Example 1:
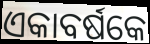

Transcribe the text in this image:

ଏକାବର୍ଷକେ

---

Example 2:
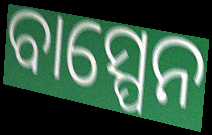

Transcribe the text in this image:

ବାସ୍ପେନ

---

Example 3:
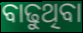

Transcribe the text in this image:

ବାଢୁଥିବା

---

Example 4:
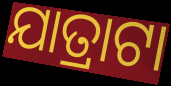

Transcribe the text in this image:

ଯାତ୍ରାଟା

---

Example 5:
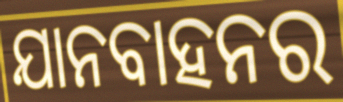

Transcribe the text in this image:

ଯାନବାହନର